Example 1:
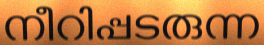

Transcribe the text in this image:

നീറിപ്പടരുന്ന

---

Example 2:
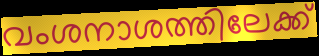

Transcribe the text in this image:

വംശനാശത്തിലേക്ക്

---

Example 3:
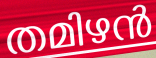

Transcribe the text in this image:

തമിഴൻ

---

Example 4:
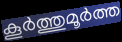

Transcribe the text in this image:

കൂർത്തുമൂർത്ത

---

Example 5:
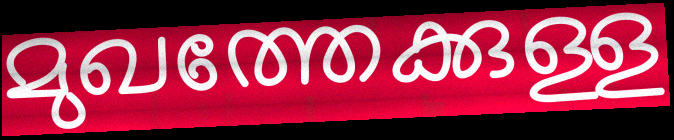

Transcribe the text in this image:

മുഖത്തേക്കുള്ള